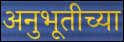
अनुभूतीच्या